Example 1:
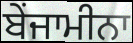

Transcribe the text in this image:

ਬੇਂਜਾਮੀਨਾ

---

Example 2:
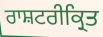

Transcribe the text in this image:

ਰਾਸ਼ਟਰੀਕ੍ਰਿਤ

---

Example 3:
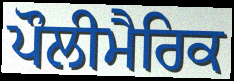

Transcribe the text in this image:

ਪੌਲੀਮੈਰਿਕ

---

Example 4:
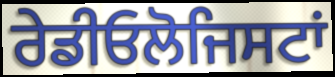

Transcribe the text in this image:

ਰੇਡੀਓਲੋਜਿਸਟਾਂ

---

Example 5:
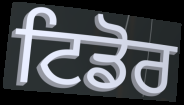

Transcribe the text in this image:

ਟਿਡੋਰ